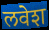
लवेश